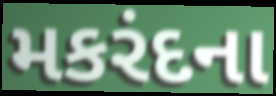
મકરંદના